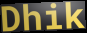
Dhik